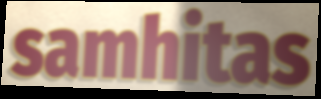
samhitas